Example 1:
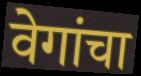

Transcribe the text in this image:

वेगांचा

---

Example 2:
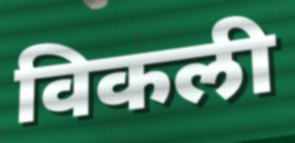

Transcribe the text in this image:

विकली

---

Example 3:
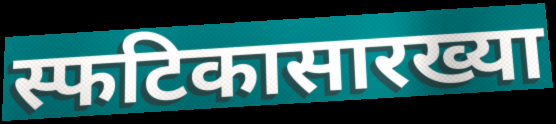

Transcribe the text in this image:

स्फटिकासारख्या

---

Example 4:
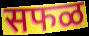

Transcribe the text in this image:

सफळ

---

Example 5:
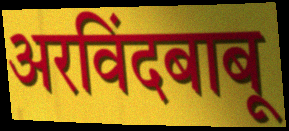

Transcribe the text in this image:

अरविंदबाबू